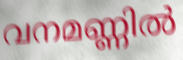
വനമണ്ണിൽ